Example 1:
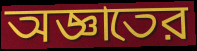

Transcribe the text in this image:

অজ্ঞাতের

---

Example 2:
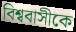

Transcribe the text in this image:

বিশ্ববাসীকে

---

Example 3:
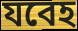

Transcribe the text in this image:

যবেহ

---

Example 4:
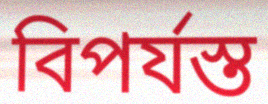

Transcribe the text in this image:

বিপর্যস্ত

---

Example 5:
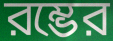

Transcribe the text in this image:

রম্ভের